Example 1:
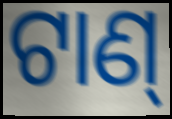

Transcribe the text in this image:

ଟାଣ୍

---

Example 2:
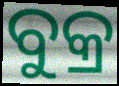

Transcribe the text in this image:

ବୁକ୍ର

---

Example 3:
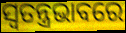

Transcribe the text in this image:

ସ୍ଵତନ୍ତ୍ରଭାବରେ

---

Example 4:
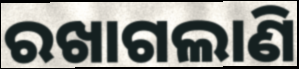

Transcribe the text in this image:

ରଖାଗଲାଣି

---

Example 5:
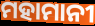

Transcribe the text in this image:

ମହାମାନୀ